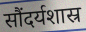
सौंदर्यशास्र